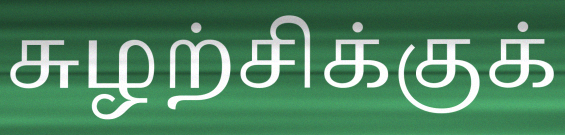
சுழற்சிக்குக்